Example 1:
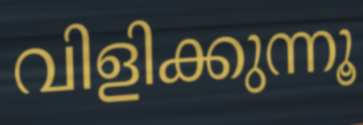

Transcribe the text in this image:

വിളിക്കുന്നൂ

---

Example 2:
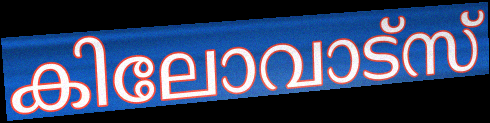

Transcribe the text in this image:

കിലോവാട്സ്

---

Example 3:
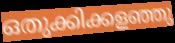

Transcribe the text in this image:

ഒതുക്കിക്കളഞ്ഞു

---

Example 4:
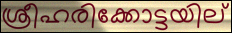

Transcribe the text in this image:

ശ്രീഹരിക്കോട്ടയില്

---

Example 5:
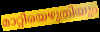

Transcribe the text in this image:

മാറ്റിയെഴുതിയും